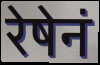
रेषेनं